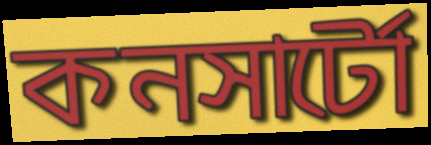
কনসার্টো